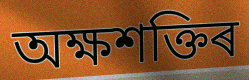
অক্ষশক্তিৰ